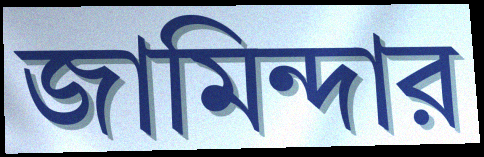
জামিন্দার